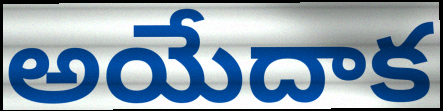
అయేదాక